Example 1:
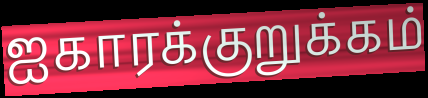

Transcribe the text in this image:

ஐகாரக்குறுக்கம்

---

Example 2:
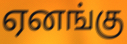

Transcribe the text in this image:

ஏனங்கு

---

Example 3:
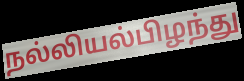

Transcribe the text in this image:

நல்லியல்பிழந்து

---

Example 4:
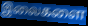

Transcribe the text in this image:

இலைகளை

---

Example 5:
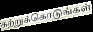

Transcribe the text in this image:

கற்றுக்கொடுங்கள்